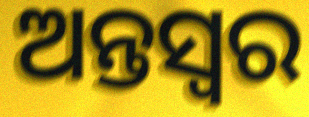
ଅନ୍ତସ୍ୱର